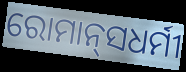
ରୋମାନ୍‍ସଧର୍ମୀ